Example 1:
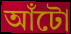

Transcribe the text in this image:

আঁটো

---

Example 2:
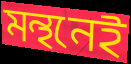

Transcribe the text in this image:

মন্থনেই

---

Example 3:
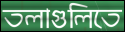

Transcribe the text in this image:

তলাগুলিতে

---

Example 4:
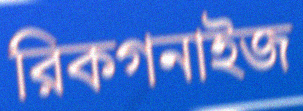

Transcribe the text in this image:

রিকগনাইজ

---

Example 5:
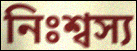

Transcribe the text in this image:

নিঃশ্বস্য